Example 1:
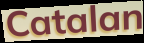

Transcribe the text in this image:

Catalan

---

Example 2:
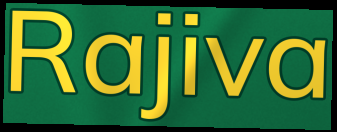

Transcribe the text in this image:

Rajiva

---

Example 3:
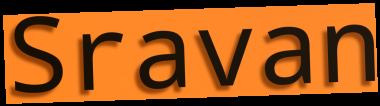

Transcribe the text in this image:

Sravan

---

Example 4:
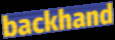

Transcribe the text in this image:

backhand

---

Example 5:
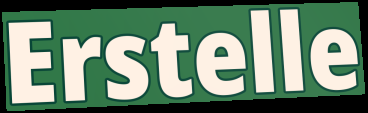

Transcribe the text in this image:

Erstelle